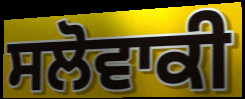
ਸਲੋਵਾਕੀ